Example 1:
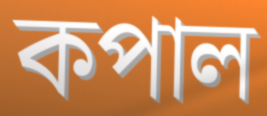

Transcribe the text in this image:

কপাল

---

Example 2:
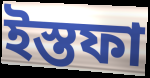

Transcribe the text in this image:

ইস্তফা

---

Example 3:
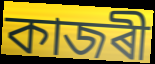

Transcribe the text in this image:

কাজৰী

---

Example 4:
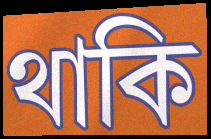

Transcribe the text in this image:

থাকি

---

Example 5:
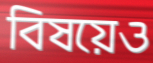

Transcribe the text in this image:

বিষয়েও